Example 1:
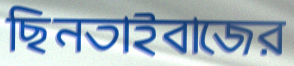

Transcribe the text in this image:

ছিনতাইবাজের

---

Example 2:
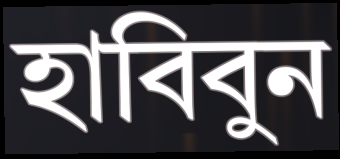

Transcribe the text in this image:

হাবিবুন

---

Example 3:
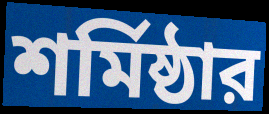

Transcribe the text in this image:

শর্মিষ্ঠার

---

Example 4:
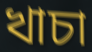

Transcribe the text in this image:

খাচা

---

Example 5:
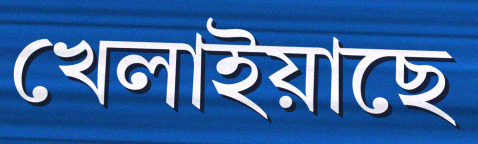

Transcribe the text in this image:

খেলাইয়াছে